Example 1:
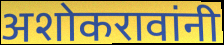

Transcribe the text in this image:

अशोकरावांनी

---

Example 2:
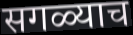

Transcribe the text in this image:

सगळ्याच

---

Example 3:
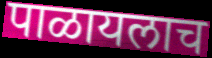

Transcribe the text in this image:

पाळायलाच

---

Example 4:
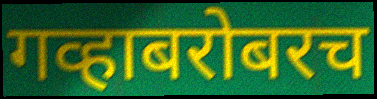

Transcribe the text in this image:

गव्हाबरोबरच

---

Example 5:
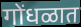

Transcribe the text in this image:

गोंधळात